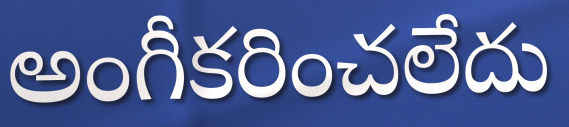
అంగీకరించలేదు